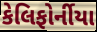
કેલિફોર્નીયા